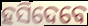
ହସିଦେବେ